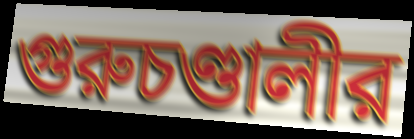
গুরুচণ্ডালীর